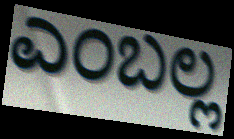
ಎಂಬಲ್ಲ